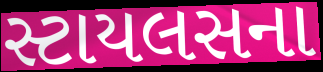
સ્ટાયલસના